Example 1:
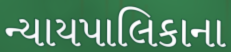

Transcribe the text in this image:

ન્યાયપાલિકાના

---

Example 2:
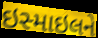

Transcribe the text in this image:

ઇસ્માઇલને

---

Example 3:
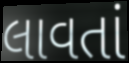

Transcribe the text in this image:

લાવતાં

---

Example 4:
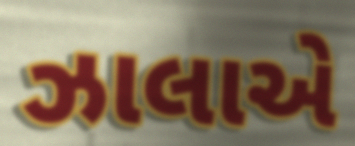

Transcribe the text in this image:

ઝાલાએ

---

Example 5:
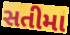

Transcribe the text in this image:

સતીમા